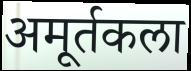
अमूर्तकला